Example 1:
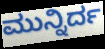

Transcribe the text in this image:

ಮುನ್ನಿರ್ದ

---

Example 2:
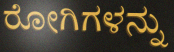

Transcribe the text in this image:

ರೋಗಿಗಳನ್ನು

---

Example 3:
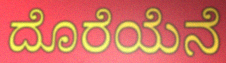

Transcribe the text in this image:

ದೊರೆಯೆನೆ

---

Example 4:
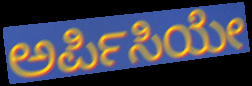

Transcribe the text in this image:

ಅರ್ಪಿಸಿಯೇ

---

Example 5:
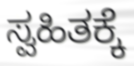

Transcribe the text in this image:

ಸ್ವಹಿತಕ್ಕೆ